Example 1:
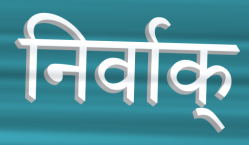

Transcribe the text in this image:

निर्वाक्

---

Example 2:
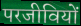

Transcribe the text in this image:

परजीवियों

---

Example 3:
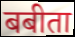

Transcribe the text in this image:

बबीता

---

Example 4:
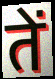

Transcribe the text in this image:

तें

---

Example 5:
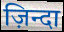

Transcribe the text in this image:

ज़िन्दा